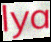
Iya